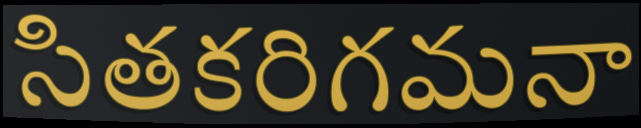
సితకరిగమనా